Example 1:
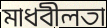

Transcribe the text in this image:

মাধবীলতা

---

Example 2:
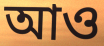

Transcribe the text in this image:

আও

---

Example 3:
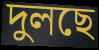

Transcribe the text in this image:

দুলছে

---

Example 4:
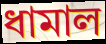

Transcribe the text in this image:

ধামাল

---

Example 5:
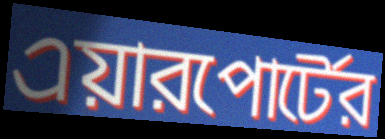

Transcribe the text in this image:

এয়ারপোর্টের